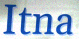
Itna